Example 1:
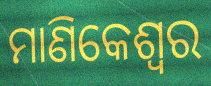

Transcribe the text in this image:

ମାଣିକେଶ୍ଵର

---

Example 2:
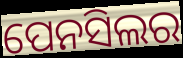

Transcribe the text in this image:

ପେନସିଲର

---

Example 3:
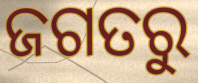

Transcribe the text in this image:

ଜଗତରୁ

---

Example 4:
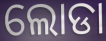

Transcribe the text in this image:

ଲୋଡା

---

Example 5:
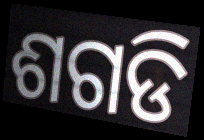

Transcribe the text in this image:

ଶଗଡି